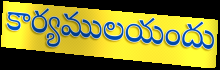
కార్యములయందు